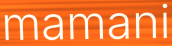
mamani